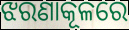
ଝରଣାକୂଳରେ